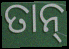
ତାନ୍